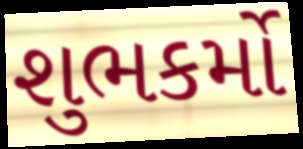
શુભકર્મો